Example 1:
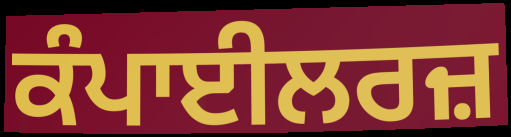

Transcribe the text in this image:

ਕੰਪਾਈਲਰਜ਼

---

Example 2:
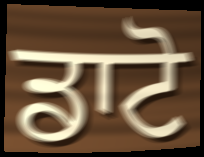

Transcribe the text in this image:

ਡਾਟੋ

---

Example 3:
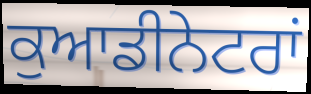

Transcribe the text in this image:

ਕੁਆਡੀਨੇਟਰਾਂ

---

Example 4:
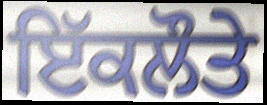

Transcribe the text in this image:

ਇੱਕਲੌਤੇ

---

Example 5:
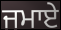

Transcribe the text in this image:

ਜਮਾਏ